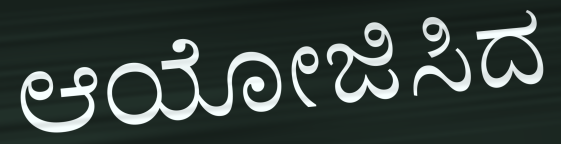
ಆಯೋಜಿಸಿದ